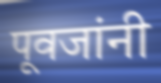
पूवजांनी